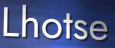
Lhotse